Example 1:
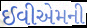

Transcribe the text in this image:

ઈવીએમની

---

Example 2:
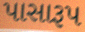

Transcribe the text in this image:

પાસારૂપ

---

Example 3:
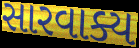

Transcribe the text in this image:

સારવાક્ય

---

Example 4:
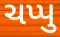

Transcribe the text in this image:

ચપ્પુ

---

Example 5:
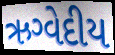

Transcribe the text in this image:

ઋગ્વેદીય